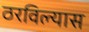
ठरविल्यास